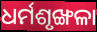
ଧର୍ମଶୃଙ୍ଖଳା